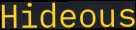
Hideous